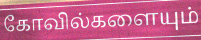
கோவில்களையும்